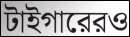
টাইগারেরও